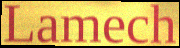
Lamech